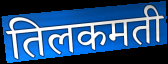
तिलकमती